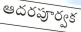
ఆదరపూర్వక